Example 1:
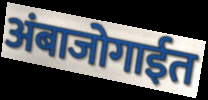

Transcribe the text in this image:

अंबाजोगाईत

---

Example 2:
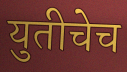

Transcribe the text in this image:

युतीचेच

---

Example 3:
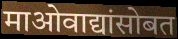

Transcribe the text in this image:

माओवाद्यांसोबत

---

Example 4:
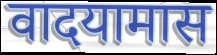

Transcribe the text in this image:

वादयामास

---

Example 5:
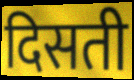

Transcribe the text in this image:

दिसती